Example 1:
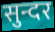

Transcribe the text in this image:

सुन्‍दर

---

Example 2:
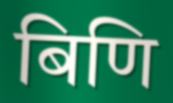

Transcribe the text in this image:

बिणि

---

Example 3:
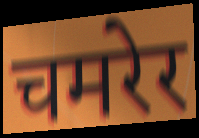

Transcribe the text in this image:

चमरेर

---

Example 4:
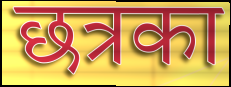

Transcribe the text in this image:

छत्रका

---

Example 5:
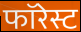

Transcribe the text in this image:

फॉरेस्‍ट